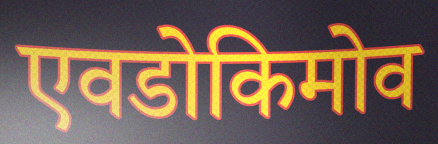
एवडोकिमोव